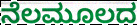
ನೆಲಮೂಲದ